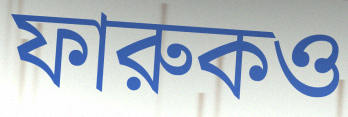
ফারুকও